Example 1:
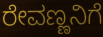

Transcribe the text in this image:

ರೇವಣ್ಣನಿಗೆ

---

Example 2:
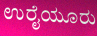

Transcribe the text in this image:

ಉರೈಯೂರು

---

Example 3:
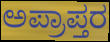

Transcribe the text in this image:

ಅಪ್ರಾಪ್ತರ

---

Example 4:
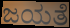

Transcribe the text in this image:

ಜಯತೆ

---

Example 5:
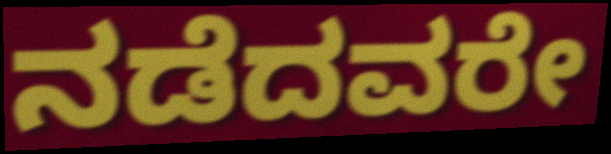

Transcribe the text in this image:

ನಡೆದವರೇ